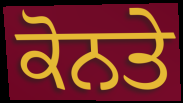
ਕੋਨਤੇ